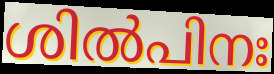
ശിൽപിനഃ